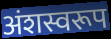
अंशस्वरूप